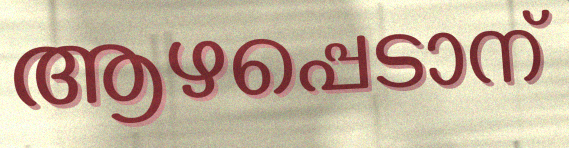
ആഴപ്പെടാന്